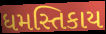
ધમસ્તિકાય